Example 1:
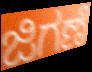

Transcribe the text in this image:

ಜಿಗಣೆ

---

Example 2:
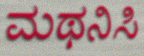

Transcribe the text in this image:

ಮಥನಿಸಿ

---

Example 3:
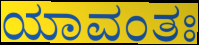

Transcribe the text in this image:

ಯಾವಂತಃ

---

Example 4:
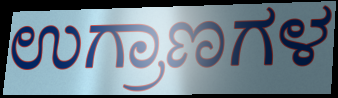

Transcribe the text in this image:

ಉಗ್ರಾಣಗಳ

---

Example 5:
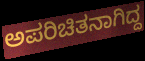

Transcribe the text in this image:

ಅಪರಿಚಿತನಾಗಿದ್ದ